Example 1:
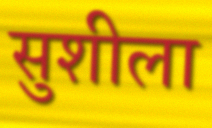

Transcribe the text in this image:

सुशीला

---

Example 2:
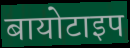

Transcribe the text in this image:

बायोटाइप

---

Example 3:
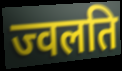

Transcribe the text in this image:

ज्वलति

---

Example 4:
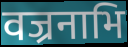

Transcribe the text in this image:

वज्रनाभि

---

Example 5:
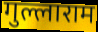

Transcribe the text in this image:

गुल्लाराम